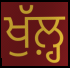
ਖੁੱਲ਼੍ਹ